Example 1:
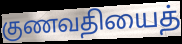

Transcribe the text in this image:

குணவதியைத்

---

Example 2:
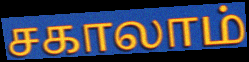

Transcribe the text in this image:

சகாலாம்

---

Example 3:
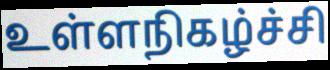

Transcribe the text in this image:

உள்ளநிகழ்ச்சி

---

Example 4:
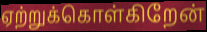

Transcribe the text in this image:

ஏற்றுக்கொள்கிறேன்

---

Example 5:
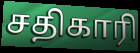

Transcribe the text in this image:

சதிகாரி